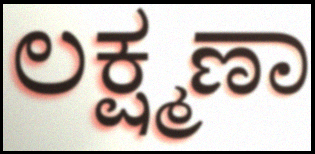
ಲಕ್ಷ್ಮಣಾ